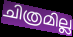
ചിത്രമില്ല